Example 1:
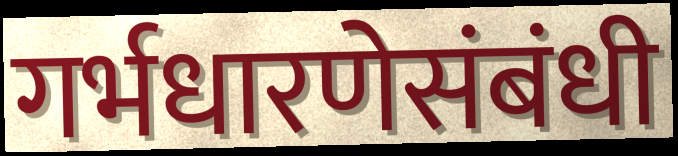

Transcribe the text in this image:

गर्भधारणेसंबंधी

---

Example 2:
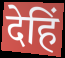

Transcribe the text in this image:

देहिं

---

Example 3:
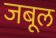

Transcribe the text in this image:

जबूल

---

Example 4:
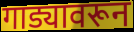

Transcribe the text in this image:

गाड्यावरून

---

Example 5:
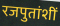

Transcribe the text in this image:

रजपुतांशीं